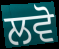
ਲਵੋ